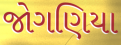
જોગણિયા